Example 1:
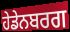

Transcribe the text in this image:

ਹੇਡੇਨਬਰਗ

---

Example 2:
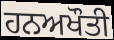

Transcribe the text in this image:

ਹਨਅਖੌਤੀ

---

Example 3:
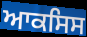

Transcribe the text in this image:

ਆਕਸਿਸ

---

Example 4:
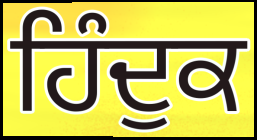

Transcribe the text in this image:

ਹਿੰਦੁਕ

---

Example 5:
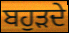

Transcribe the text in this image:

ਬਹੁੜਦੇ